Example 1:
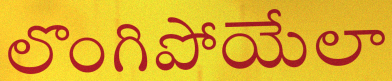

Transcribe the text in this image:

లొంగిపోయేలా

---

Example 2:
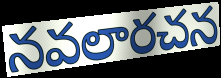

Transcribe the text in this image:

నవలారచన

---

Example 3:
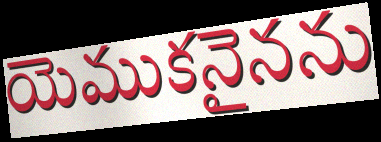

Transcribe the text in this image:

యెముకనైనను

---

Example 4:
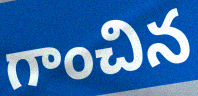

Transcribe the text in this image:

గాంచిన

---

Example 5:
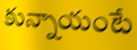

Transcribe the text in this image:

కున్నాయంటే